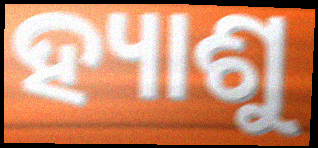
ହ୍ୟାଶୁ